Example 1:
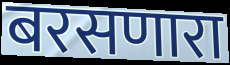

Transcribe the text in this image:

बरसणारा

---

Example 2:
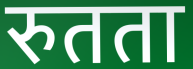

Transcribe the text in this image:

रुतता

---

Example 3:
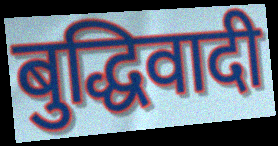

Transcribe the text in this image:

बुद्धिवादी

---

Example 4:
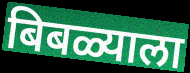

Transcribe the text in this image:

बिबळ्याला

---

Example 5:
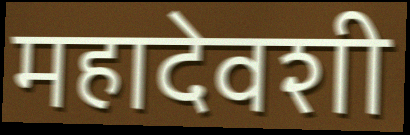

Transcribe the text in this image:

महादेवशी